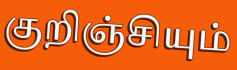
குறிஞ்சியும்